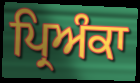
ਪ੍ਰਿਅੰਕਾ